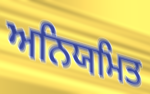
ਅਨਿਯਮਿਤ